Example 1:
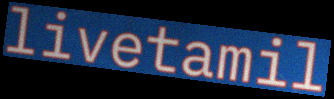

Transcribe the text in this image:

livetamil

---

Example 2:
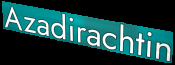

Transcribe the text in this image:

Azadirachtin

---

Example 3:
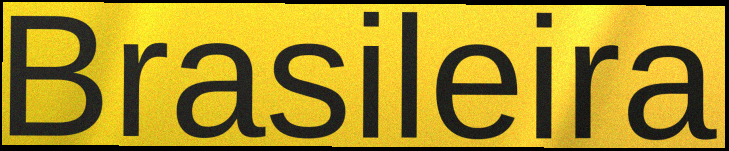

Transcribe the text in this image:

Brasileira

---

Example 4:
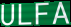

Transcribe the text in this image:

ULFA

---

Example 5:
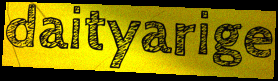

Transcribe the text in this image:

daityarige